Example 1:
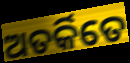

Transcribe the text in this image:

ଅତର୍କିତେ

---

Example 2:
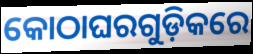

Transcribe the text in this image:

କୋଠାଘରଗୁଡ଼ିକରେ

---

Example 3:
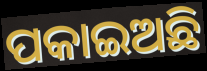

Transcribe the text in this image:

ପକାଇଅଛି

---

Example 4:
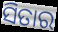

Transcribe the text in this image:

ସିତାର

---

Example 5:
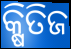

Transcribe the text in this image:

କ୍ଷିତିଜ